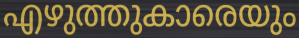
എഴുത്തുകാരെയും